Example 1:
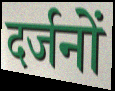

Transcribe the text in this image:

दर्जनों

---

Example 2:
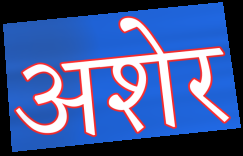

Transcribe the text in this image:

अशेर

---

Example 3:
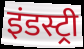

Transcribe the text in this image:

इंडस्ट्री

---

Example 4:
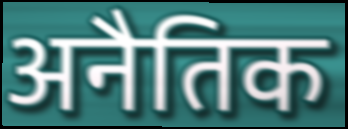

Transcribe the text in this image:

अनैतिक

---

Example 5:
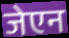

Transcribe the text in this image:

जेएन